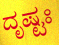
ದೃಷ್ಟಃ